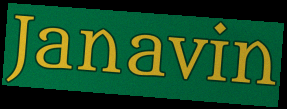
Janavin